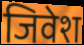
जिवेश